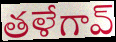
తళేగావ్